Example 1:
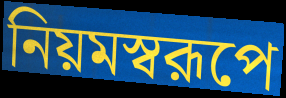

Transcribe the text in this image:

নিয়মস্বরূপে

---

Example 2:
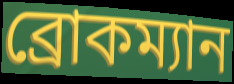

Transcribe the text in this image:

ব্রোকম্যান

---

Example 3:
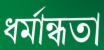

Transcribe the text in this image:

ধর্মান্ধতা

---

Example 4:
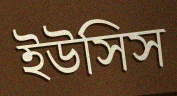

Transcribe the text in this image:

ইউসিস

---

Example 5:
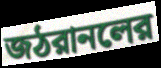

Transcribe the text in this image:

জঠরানলের